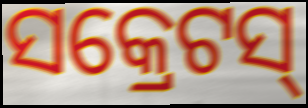
ସକ୍ରେଟସ୍